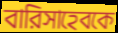
বারিসাহেবকে